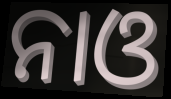
ନାଓ